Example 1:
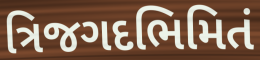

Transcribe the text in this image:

ત્રિજગદભિમિતં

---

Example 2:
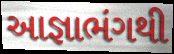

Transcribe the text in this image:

આજ્ઞાભંગથી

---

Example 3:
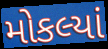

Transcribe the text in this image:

મોકલ્યાં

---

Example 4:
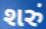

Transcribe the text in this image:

શરું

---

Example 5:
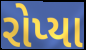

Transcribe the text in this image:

રોપ્યા